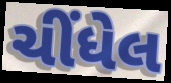
ચીંધેલ